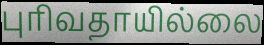
புரிவதாயில்லை